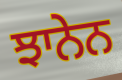
ਝਾਨੇਨ